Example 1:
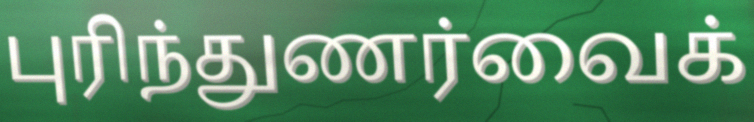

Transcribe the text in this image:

புரிந்துணர்வைக்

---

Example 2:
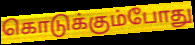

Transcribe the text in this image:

கொடுக்கும்போது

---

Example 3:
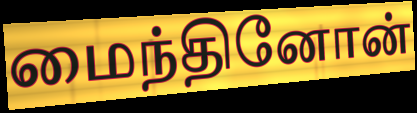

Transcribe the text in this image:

மைந்தினோன்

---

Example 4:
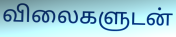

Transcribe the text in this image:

விலைகளுடன்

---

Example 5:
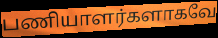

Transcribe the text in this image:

பணியாளர்களாகவே